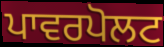
ਪਾਵਰਪੋਲਟ